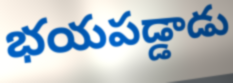
భయపడ్డాడు